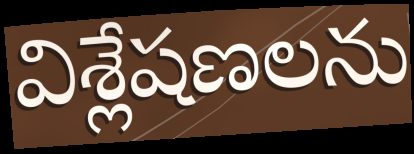
విశ్లేషణలను